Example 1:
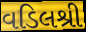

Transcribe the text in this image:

વડિલશ્રી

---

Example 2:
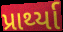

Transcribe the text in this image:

પ્રાર્થ્યા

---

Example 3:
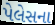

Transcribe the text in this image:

પેલેસના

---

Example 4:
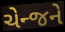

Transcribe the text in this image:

ચેન્જને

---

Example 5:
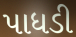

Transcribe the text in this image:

પાધડી